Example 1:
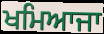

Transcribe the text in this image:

ਖਮਿਆਜਾ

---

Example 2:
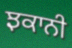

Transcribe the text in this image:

ਝਕਾਨੀ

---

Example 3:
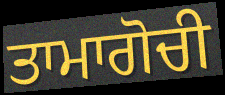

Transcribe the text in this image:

ਤਾਮਾਗੋਚੀ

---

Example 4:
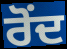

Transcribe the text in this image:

ਰੋਂਦ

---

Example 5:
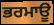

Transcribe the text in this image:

ਭਰਮਾਊ